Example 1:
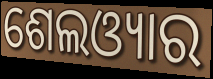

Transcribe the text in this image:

ଶେଲଓ୍ୟାର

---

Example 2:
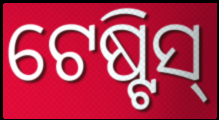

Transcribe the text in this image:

ଟେଷ୍ଟିସ୍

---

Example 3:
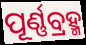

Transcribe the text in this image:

ପୂର୍ଣ୍ଣବ୍ରହ୍ମ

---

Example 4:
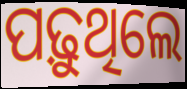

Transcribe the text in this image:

ପଢ଼ୁଥିଲେ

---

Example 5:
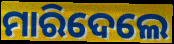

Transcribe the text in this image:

ମାରିଦେଲେ